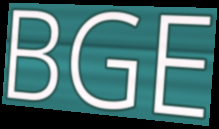
BGE